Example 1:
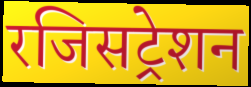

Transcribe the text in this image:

रजिसट्रेशन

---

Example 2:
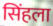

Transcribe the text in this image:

सिंहला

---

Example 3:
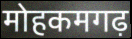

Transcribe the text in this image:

मोहकमगढ़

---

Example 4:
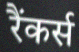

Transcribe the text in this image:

रैंकर्स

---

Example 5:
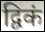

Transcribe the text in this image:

द्विकं